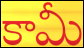
కామీ